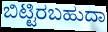
ಬಿಟ್ಟಿರಬಹುದಾ